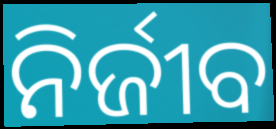
ନିର୍ଜୀବ